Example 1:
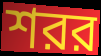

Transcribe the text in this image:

শরর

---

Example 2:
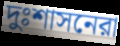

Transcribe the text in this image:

দুঃশাসনেরা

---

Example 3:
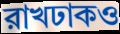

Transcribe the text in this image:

রাখঢাকও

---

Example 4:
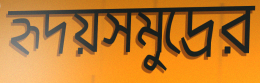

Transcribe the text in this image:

হৃদয়সমুদ্রের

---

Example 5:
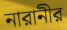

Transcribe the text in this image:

নারানীর